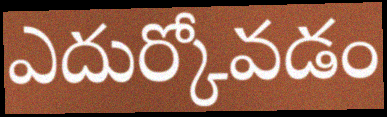
ఎదుర్కోవడం